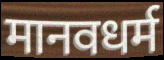
मानवधर्म